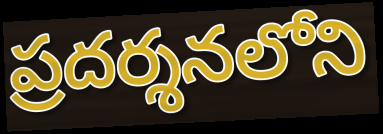
ప్రదర్శనలోని